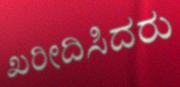
ಖರೀದಿಸಿದರು